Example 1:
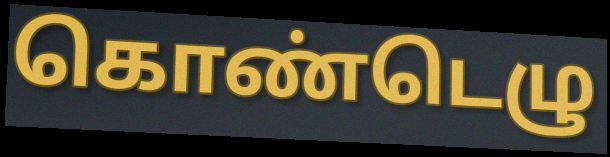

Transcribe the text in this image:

கொண்டெழு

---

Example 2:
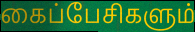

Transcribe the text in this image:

கைப்பேசிகளும்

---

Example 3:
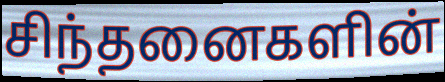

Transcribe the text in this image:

சிந்தனைகளின்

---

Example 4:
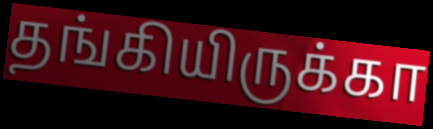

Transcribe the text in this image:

தங்கியிருக்கா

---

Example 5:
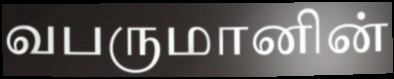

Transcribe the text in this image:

வபருமானின்